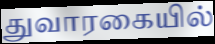
துவாரகையில்